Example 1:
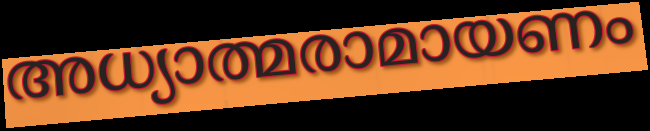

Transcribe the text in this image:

അധ്യാത്മരാമായണം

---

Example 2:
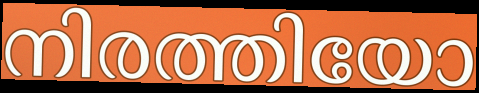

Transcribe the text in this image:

നിരത്തിയോ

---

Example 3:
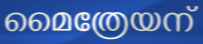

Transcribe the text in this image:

മൈത്രേയന്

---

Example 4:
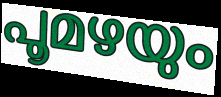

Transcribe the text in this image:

പൂമഴയും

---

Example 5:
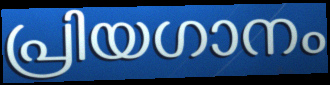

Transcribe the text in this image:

പ്രിയഗാനം